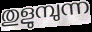
തുളുമ്പുന്ന